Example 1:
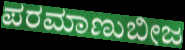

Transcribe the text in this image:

ಪರಮಾಣುಬೀಜ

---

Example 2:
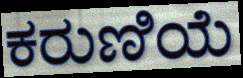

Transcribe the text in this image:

ಕರುಣಿಯೆ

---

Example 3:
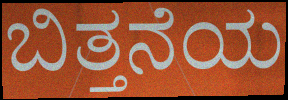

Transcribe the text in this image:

ಬಿತ್ತನೆಯ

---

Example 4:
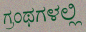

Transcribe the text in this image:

ಗ್ರಂಥಗಳಲ್ಲಿ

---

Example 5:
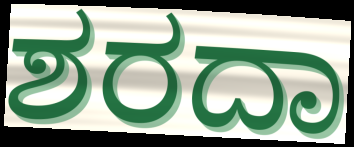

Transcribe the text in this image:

ಶರದಾ